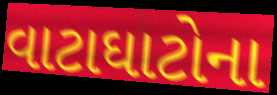
વાટાઘાટોના